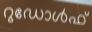
റുഡോൾഫ്